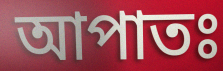
আপাতঃ